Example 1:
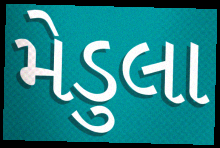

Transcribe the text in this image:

મેડુલા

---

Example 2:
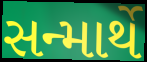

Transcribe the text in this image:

સન્માર્થે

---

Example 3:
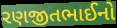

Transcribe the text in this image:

રણજીતભાઈનો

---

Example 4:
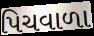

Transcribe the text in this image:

પિચવાળા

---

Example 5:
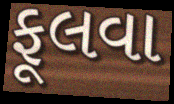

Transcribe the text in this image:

ફૂલવા